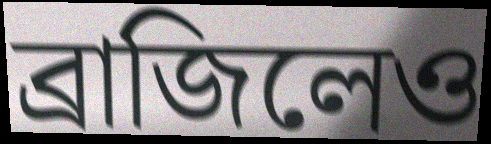
ব্রাজিলেও